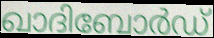
ഖാദിബോർഡ്